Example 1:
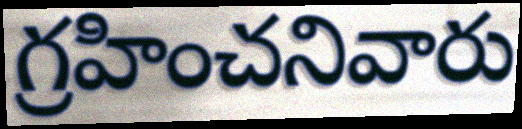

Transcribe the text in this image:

గ్రహించనివారు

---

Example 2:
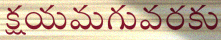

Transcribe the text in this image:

క్షయమగువరకు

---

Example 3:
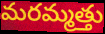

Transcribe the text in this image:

మరమ్మత్తు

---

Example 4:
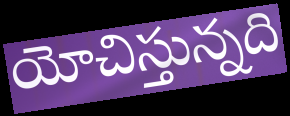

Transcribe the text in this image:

యోచిస్తున్నది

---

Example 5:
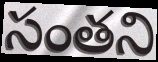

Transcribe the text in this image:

సంతని